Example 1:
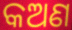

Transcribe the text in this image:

କଅଣ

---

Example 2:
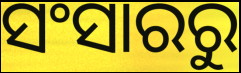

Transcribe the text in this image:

ସଂସାରରୁ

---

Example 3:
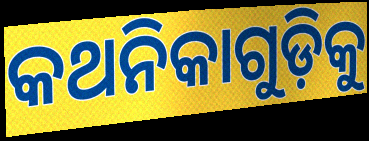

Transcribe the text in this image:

କଥନିକାଗୁଡ଼ିକୁ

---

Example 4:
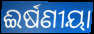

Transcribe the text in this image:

ଈର୍ଷଣୀୟା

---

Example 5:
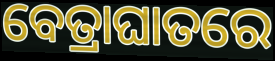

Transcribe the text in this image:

ବେତ୍ରାଘାତରେ